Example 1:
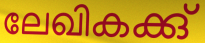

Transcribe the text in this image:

ലേഖികക്കു്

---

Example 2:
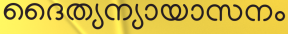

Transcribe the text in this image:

ദൈത്യന്യായാസനം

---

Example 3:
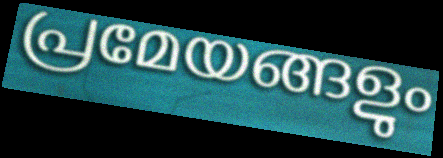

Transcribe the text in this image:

പ്രമേയങ്ങളും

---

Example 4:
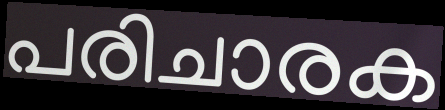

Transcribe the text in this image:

പരിചാരക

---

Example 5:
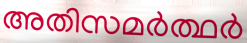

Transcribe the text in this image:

അതിസമർത്ഥർ